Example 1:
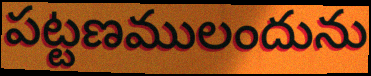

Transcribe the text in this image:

పట్టణములందును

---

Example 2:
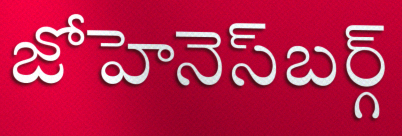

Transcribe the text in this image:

జోహెనెస్‍బర్గ్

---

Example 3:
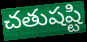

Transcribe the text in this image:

చతుషష్టి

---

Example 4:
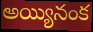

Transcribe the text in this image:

అయ్యినంక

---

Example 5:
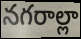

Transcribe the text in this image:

నగరాల్లా